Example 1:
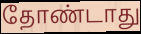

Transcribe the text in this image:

தோண்டாது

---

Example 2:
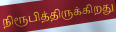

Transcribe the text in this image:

நிரூபித்திருக்கிறது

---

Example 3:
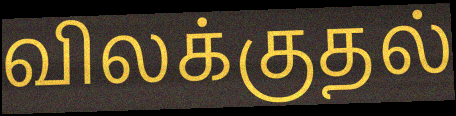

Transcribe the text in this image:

விலக்குதல்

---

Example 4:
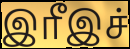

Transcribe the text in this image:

இரீஇச்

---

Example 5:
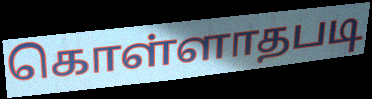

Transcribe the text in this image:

கொள்ளாதபடி